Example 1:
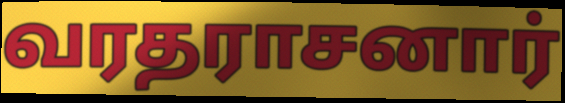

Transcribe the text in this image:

வரதராசனார்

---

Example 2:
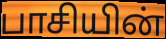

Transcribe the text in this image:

பாசியின்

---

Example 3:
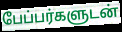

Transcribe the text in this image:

பேப்பர்களுடன்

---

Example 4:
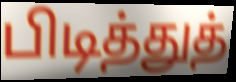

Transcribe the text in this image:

பிடித்துத்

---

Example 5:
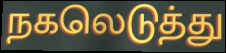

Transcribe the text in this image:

நகலெடுத்து